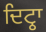
ਦਿਟ੍ਠਾ